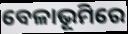
ବେଳାଭୂମିରେ